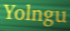
Yolngu